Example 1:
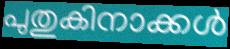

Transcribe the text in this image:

പുതുകിനാക്കൾ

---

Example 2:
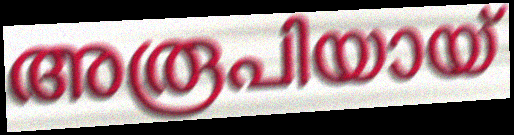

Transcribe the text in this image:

അരൂപിയായ്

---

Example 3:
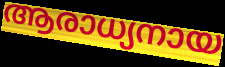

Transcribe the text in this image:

ആരാധ്യനായ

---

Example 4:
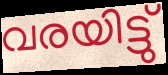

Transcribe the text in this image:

വരയിട്ടു്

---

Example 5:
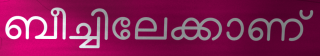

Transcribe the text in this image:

ബീച്ചിലേക്കാണ്